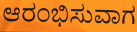
ಆರಂಭಿಸುವಾಗ